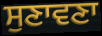
ਸੁਣਾਵਣਾ